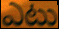
ఎటు